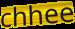
chhee